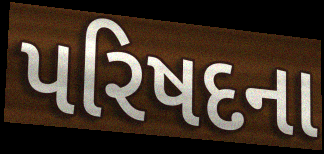
પરિષદના